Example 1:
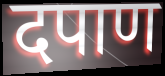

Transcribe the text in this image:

दपाण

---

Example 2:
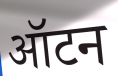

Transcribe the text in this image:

ऑटन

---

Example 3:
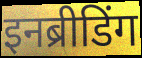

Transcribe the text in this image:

इनब्रीडिंग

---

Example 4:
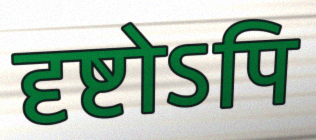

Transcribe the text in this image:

दृष्टोऽपि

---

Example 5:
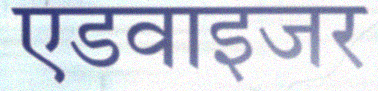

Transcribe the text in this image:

एडवाइजर